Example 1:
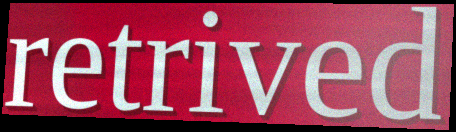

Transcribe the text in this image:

retrived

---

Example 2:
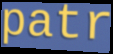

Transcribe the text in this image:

patr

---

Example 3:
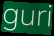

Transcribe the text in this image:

guri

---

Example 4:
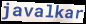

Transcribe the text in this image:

javalkar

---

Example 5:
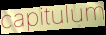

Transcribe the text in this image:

capitulum